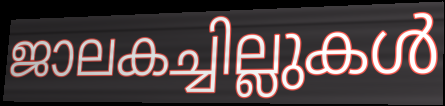
ജാലകച്ചില്ലുകൾ